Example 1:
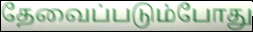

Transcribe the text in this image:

தேவைப்படும்போது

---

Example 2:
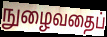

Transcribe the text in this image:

நுழைவதைப்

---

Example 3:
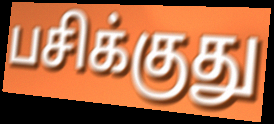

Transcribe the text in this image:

பசிக்குது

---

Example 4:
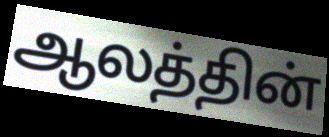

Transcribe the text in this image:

ஆலத்தின்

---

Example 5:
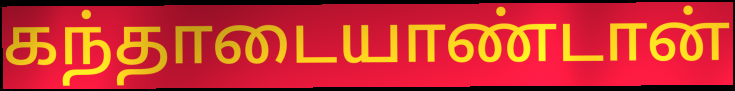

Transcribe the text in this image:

கந்தாடையாண்டான்